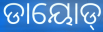
ଡାୟୋଡ୍